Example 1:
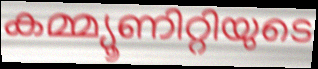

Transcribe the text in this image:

കമ്മ്യൂണിറ്റിയുടെ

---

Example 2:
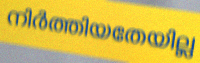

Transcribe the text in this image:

നിർത്തിയതേയില്ല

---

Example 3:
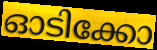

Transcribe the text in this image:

ഓടിക്കോ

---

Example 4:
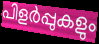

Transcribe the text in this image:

പിളർപ്പുകളും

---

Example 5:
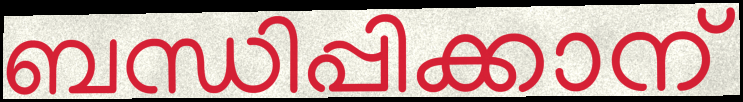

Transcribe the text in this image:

ബന്ധിപ്പിക്കാന്